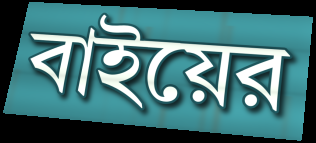
বাইয়ের